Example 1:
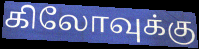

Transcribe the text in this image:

கிலோவுக்கு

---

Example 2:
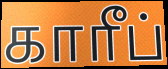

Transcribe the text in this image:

காரீப்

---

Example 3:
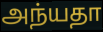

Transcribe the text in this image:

அந்யதா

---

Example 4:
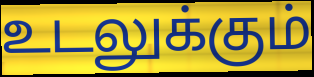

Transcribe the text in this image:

உடலுக்கும்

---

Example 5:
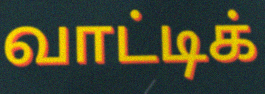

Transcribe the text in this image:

வாட்டிக்